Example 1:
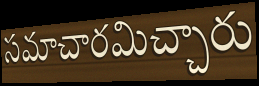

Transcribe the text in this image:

సమాచారమిచ్చారు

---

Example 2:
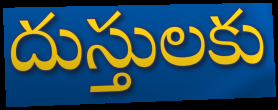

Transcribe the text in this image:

దుస్తులకు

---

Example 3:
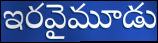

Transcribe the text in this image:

ఇరవైమూడు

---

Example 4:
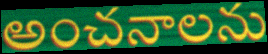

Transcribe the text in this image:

అంచనాలను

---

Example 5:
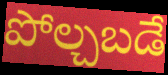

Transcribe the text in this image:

పోల్చబడే